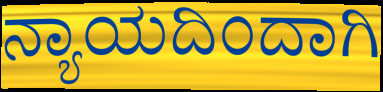
ನ್ಯಾಯದಿಂದಾಗಿ